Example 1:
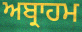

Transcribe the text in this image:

ਅਬ੍ਰਾਹਮ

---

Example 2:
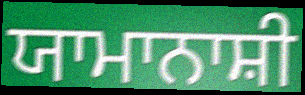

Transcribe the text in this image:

ਯਾਮਾਨਾਸ਼ੀ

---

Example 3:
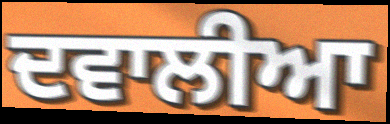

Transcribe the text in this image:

ਦਵਾਲੀਆ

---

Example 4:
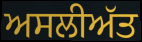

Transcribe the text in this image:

ਅਸਲੀਅੱਤ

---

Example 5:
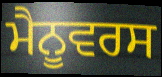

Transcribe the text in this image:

ਮੈਨੂਵਰਸ